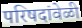
परिषदांवेळी